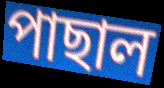
পাছাল